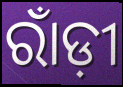
ରାଁଡ଼ୀ